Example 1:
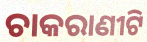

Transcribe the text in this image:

ଚାକରାଣୀଟି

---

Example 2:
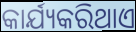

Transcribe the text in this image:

କାର୍ଯ୍ୟକରିଥାଏ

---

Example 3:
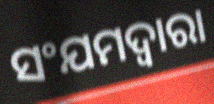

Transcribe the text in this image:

ସଂଯମଦ୍ୱାରା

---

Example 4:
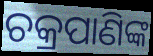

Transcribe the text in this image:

ଚକ୍ରପାଣିଙ୍କ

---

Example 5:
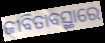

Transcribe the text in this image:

ଜୀବିତାବସ୍ଥାରେ